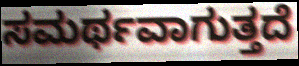
ಸಮರ್ಥವಾಗುತ್ತದೆ